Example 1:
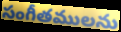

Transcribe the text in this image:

సంగీతములను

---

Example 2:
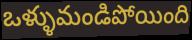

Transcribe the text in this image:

ఒళ్ళుమండిపోయింది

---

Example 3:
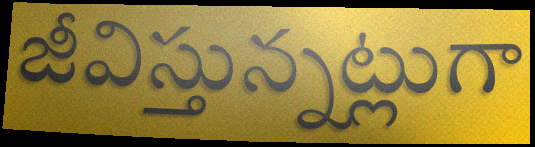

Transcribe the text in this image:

జీవిస్తున్నట్లుగా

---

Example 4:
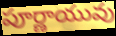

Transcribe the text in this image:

పూర్ణాయువు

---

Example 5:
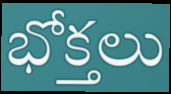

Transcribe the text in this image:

భోక్తలు